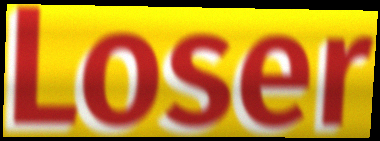
Loser